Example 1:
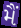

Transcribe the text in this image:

મૈં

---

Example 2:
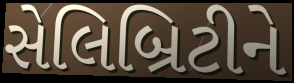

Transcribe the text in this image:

સેલિબ્રિટીને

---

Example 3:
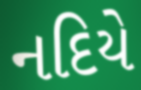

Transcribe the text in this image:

નદિયે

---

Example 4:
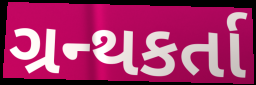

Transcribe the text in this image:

ગ્રન્થકર્તા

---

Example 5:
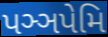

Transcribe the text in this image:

પઞ્ઞપેમિ